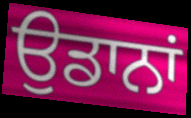
ਉਡਾਨਾਂ